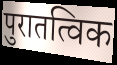
पुरातत्विक